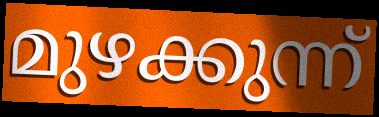
മുഴക്കുന്ന്